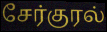
சேர்குரல்